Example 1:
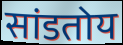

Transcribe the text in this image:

सांडतोय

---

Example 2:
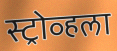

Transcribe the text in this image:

स्ट्रोव्हला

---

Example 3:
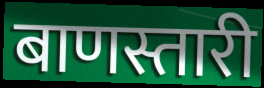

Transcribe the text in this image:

बाणस्तारी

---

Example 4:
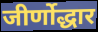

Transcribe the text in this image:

जीर्णोद्धार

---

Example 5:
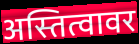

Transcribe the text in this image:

अस्तित्वावर